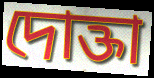
দোক্তা